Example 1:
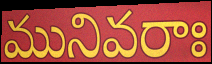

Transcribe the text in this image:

మునివరాః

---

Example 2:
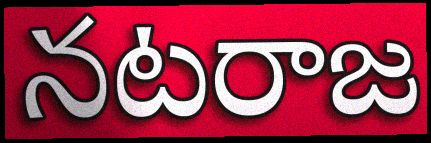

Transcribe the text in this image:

నటరాజ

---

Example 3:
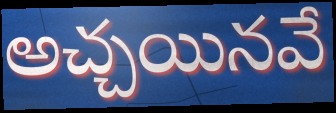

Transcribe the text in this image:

అచ్చయినవే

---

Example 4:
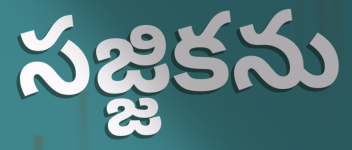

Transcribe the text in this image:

సజ్జికను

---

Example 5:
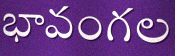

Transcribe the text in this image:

భావంగల